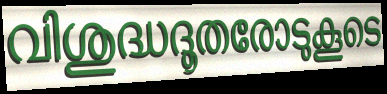
വിശുദ്ധദൂതരോടുകൂടെ